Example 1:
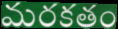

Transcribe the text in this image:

మరకతం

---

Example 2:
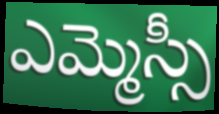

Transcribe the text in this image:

ఎమ్మెస్సీ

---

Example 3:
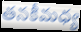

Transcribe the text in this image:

తనకీమధ్య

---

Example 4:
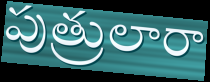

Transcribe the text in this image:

పుత్రులారా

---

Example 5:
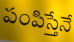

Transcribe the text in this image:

పంపిస్తేనే